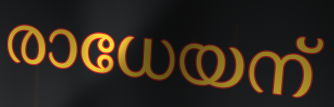
രാധേയന്